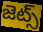
జెట్స్